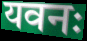
यवनः